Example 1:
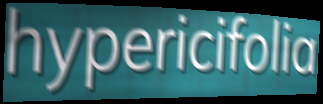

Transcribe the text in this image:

hypericifolia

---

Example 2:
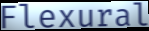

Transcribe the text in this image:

Flexural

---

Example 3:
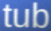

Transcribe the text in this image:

tub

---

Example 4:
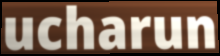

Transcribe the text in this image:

ucharun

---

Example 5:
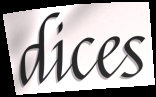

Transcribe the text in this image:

dices